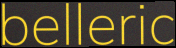
belleric